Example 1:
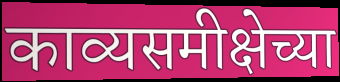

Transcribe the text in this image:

काव्यसमीक्षेच्या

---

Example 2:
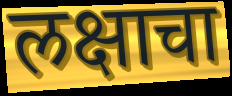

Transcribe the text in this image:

लक्षाचा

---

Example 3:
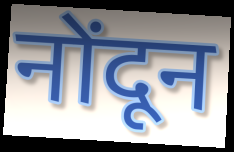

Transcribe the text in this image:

नोंदून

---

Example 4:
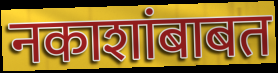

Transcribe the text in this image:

नकाशांबाबत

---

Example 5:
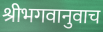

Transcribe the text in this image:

श्रीभगवानुवाच